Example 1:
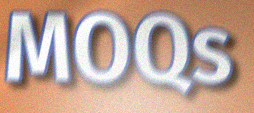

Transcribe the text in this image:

MOQs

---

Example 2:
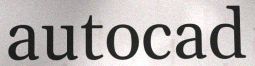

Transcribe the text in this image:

autocad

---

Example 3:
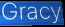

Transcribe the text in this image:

Gracy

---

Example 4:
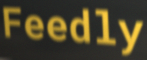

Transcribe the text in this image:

Feedly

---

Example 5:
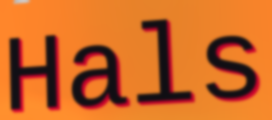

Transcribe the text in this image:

Hals